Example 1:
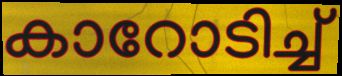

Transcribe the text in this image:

കാറോടിച്ച്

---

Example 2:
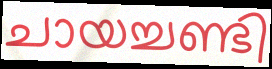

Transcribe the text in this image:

ചായച്ചണ്ടി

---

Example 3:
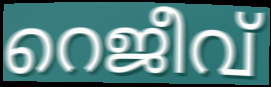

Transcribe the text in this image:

റെജീവ്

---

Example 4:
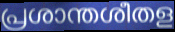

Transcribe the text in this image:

പ്രശാന്തശീതള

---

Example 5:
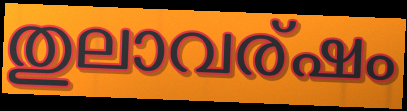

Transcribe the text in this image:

തുലാവര്ഷം